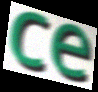
ce